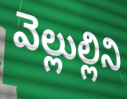
వెల్లుల్లిని